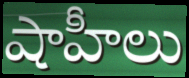
షాహీలు